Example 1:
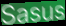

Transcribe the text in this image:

Sasus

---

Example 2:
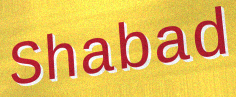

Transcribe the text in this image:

Shabad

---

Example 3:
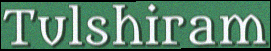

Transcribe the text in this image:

Tulshiram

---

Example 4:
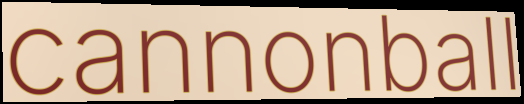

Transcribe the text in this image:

cannonball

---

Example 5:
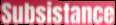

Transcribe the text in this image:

Subsistance